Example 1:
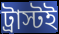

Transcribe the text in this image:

ট্রাস্টই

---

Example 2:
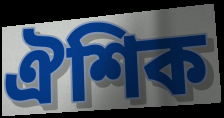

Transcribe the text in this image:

ঐশিক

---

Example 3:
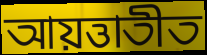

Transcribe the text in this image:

আয়ত্তাতীত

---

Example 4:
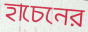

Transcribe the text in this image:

হাচেনের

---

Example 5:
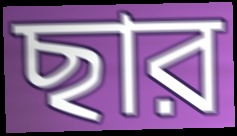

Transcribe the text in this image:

ছার